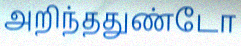
அறிந்ததுண்டோ